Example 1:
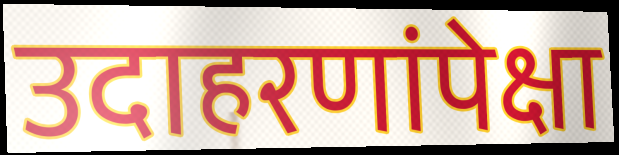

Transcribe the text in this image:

उदाहरणांपेक्षा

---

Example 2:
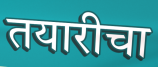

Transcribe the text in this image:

तयारीचा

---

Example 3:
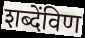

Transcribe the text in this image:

शब्देंविण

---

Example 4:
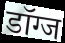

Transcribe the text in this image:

डॉग्ज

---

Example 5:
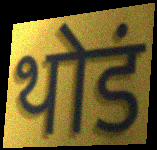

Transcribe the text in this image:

थोडं